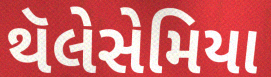
થૅલેસેમિયા